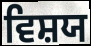
ਵਿਸ਼ਯ